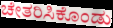
ಚೇತರಿಸಿಕೊಂಡು